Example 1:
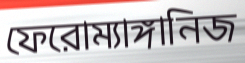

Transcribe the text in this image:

ফেরোম্যাঙ্গানিজ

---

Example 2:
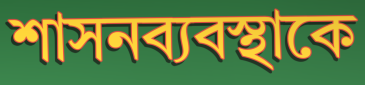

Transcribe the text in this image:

শাসনব্যবস্থাকে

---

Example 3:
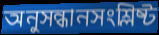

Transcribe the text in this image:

অনুসন্ধানসংশ্লিষ্ট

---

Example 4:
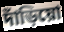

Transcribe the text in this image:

দাঁড়িয়ো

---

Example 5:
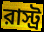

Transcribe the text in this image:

রাস্ট্র